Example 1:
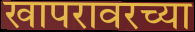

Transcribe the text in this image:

खापरावरच्या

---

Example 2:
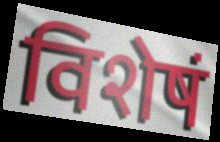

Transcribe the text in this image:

विशेषं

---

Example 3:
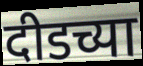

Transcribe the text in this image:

दीडच्या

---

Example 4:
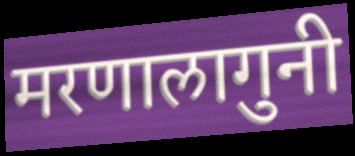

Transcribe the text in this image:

मरणालागुनी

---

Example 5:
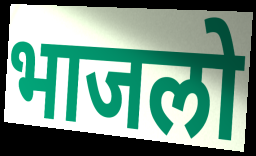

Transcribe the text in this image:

भाजलो